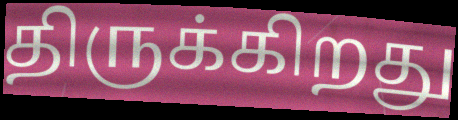
திருக்கிறது